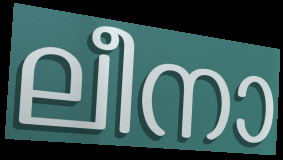
ലീനാ